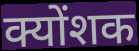
क्योंशक